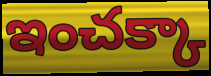
ఇంచక్కా